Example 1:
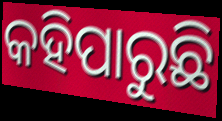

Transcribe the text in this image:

କହିପାରୁଛି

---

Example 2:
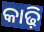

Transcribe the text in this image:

କାଢ଼ି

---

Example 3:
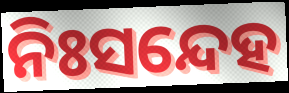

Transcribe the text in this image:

ନିଃସନ୍ଦେହ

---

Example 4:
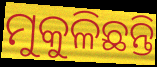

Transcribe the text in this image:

ମୁକୁଳିଛନ୍ତି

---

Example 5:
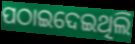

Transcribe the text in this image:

ପଠାଇଦେଇଥିଲି